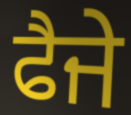
ਫੈਜੇ